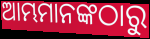
ଆମ୍ଭମାନଙ୍କଠାରୁ